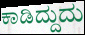
ಕಾಡಿದ್ದುದು